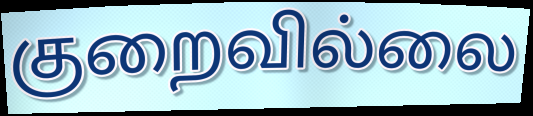
குறைவில்லை